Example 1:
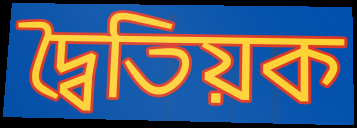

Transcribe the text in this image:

দ্বৈতিয়ক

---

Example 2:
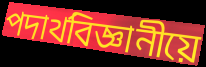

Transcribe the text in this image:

পদাৰ্থবিজ্ঞানীয়ে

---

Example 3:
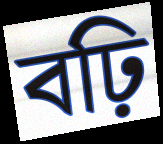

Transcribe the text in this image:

বঢ়ি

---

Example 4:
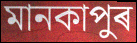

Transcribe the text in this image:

মানকাপুৰ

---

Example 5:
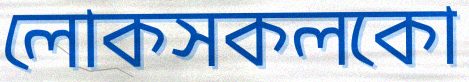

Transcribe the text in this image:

লোকসকলকো